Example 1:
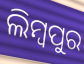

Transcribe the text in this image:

ଲିମ୍ବପୁର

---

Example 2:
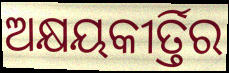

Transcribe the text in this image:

ଅକ୍ଷୟକୀର୍ତ୍ତିର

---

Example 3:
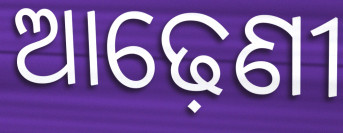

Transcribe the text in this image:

ଆଢ଼େଣୀ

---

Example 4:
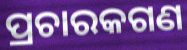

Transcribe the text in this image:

ପ୍ରଚାରକଗଣ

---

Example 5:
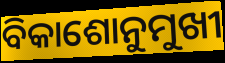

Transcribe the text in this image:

ବିକାଶୋନୁମୁଖୀ